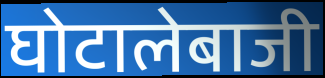
घोटालेबाजी